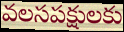
వలసపక్షులకు